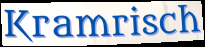
Kramrisch